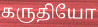
கருதியோ